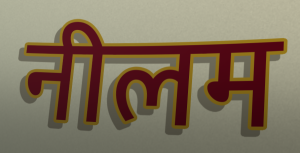
नीलम